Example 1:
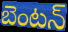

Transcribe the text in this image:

బెంటన్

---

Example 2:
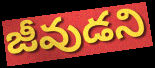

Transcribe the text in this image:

జీవుడని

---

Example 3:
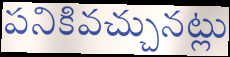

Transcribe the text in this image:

పనికివచ్చునట్లు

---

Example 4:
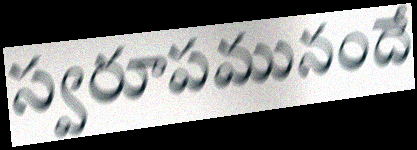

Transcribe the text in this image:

స్వరూపమునందే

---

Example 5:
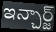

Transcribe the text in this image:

ఇన్చార్జ్